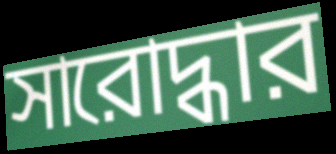
সারোদ্ধার